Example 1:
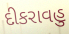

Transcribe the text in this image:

દીકરાવહુ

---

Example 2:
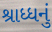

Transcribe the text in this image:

શ્રાધ્ધનું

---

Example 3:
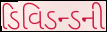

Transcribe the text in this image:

ડિવિડન્ડની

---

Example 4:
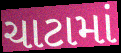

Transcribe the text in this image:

ચાટામાં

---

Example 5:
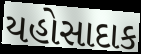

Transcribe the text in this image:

યહોસાદાક